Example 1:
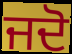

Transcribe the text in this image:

ਜਦੋ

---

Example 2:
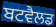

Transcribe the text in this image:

ਬਟਵੈਲਡ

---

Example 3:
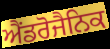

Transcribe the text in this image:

ਐਂਡਰੋਜੈਨਿਕ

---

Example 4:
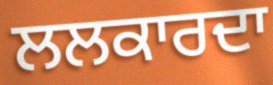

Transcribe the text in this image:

ਲਲਕਾਰਦਾ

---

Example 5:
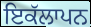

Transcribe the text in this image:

ਇਕੱਲਾਪਨ